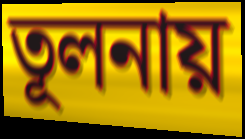
তূলনায়